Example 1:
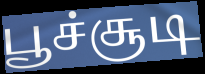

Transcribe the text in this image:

பூச்சூடி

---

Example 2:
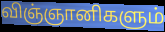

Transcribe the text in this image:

விஞ்ஞானிகளும்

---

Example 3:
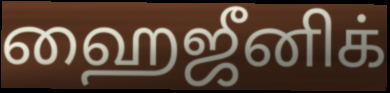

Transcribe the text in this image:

ஹைஜீனிக்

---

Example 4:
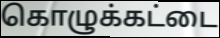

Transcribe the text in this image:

கொழுக்கட்டை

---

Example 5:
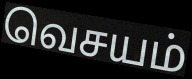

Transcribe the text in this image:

வெசயம்